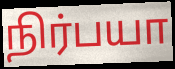
நிர்பயா